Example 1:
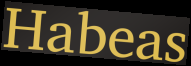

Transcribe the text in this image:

Habeas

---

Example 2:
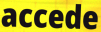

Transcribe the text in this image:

accede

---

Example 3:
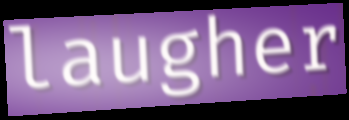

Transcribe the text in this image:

laugher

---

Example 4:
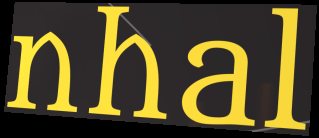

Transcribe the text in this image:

nhal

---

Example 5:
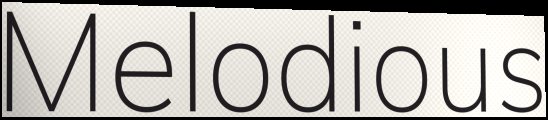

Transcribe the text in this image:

Melodious